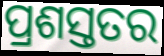
ପ୍ରଶସ୍ତତର